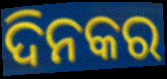
ଦିନକର